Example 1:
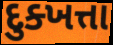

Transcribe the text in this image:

દુક્ખત્તા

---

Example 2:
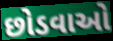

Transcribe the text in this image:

છોડવાઓ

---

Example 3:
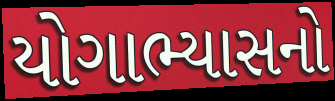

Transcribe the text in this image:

યોગાભ્યાસનો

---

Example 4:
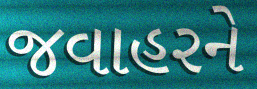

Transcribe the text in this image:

જવાહરને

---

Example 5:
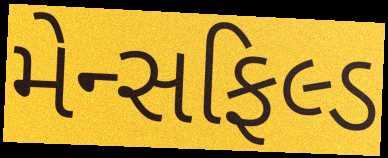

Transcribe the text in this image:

મેન્સફિલ્ડ